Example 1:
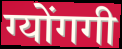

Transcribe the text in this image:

ग्योंगगी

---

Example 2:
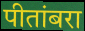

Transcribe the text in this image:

पीतांबरा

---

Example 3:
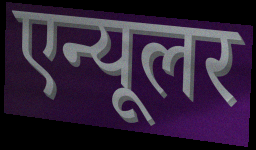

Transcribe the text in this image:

एन्यूलर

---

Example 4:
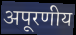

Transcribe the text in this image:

अपूरणीय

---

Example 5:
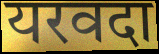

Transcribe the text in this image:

यरवदा